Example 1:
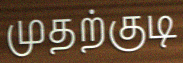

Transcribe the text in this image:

முதற்குடி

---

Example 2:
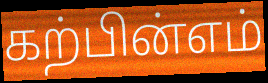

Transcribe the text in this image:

கற்பின்எம்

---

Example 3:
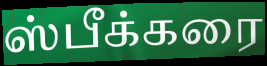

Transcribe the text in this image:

ஸ்பீக்கரை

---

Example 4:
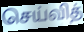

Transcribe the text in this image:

செய்வித்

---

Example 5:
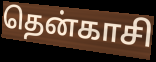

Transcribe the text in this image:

தென்காசி